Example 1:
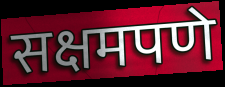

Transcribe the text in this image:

सक्षमपणे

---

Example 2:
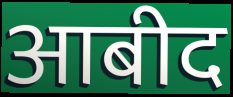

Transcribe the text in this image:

आबीद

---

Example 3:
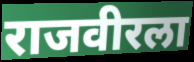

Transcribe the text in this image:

राजवीरला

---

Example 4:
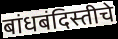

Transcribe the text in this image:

बांधबंदिस्तीचे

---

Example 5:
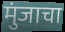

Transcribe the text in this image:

मुंजाचा